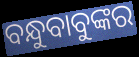
ବନ୍ଧୁବାବୁଙ୍କର